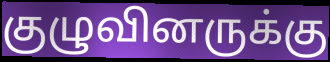
குழுவினருக்கு